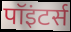
पॉइंटर्स